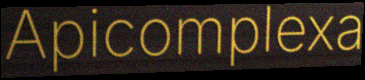
Apicomplexa